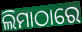
ଲିମାଠାରେ